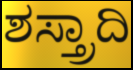
ಶಸ್ತ್ರಾದಿ